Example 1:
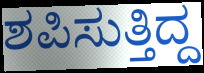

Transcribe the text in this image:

ಶಪಿಸುತ್ತಿದ್ದ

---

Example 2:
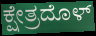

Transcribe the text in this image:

ಕ್ಷೇತ್ರದೊಳ್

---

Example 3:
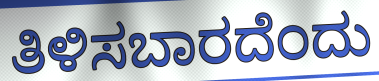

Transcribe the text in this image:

ತಿಳಿಸಬಾರದೆಂದು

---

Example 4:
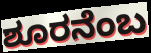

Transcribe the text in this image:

ಶೂರನೆಂಬ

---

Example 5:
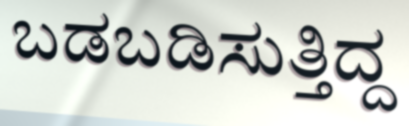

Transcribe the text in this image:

ಬಡಬಡಿಸುತ್ತಿದ್ದ